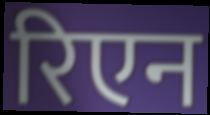
रिएन